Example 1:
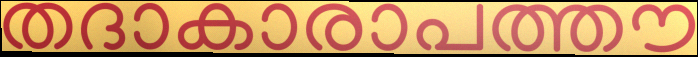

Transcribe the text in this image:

തദാകാരാപത്തൗ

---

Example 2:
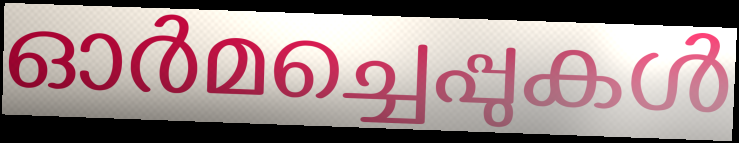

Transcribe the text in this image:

ഓർമച്ചെപ്പുകൾ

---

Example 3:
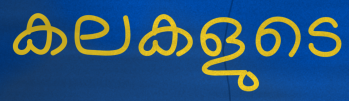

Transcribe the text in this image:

കലകളുടെ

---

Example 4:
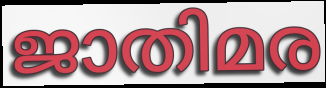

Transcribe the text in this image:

ജാതിമര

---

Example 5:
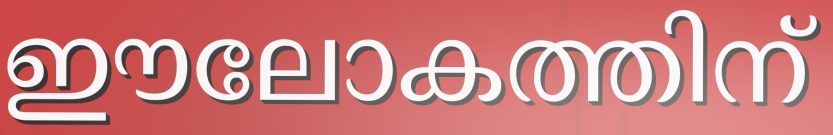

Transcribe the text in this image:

ഈലോകത്തിന്